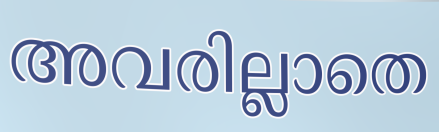
അവരില്ലാതെ